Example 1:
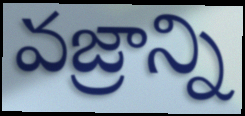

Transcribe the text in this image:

వజ్రాన్ని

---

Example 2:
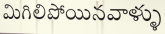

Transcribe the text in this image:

మిగిలిపోయినవాళ్ళు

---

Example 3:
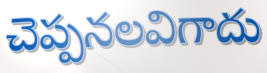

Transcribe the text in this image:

చెప్పనలవిగాదు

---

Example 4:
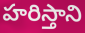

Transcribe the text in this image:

హరిస్తాని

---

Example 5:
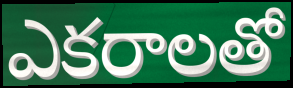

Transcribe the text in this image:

ఎకరాలతో